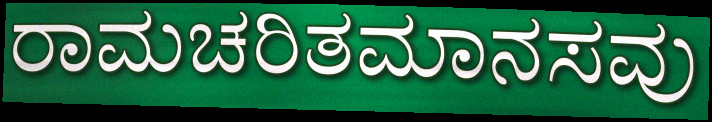
ರಾಮಚರಿತಮಾನಸವು